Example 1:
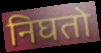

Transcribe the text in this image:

निघतो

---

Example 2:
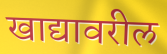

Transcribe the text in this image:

खाद्यावरील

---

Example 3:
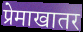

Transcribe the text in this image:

प्रेमाखातर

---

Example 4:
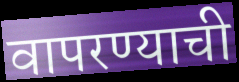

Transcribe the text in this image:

वापरण्याची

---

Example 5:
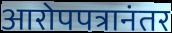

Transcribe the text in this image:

आरोपपत्रानंतर